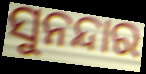
ସୁନନ୍ଦାର